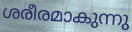
ശരീരമാകുന്നു